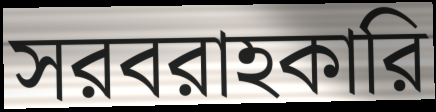
সরবরাহকারি